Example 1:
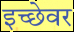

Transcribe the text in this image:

इच्छेवर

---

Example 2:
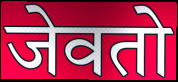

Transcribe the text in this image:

जेवतो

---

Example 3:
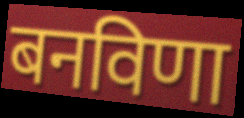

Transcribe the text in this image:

बनविणा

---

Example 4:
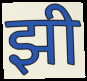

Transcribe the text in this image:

झी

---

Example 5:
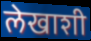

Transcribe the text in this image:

लेखाशी